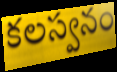
కలస్వనం